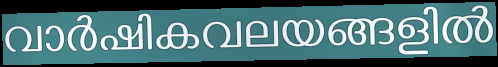
വാർഷികവലയങ്ങളിൽ